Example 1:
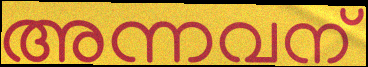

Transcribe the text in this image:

അന്നവന്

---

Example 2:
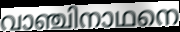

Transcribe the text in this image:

വാഞ്ചിനാഥനെ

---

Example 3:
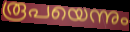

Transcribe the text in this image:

രൂപയെന്നും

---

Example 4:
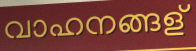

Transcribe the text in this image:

വാഹനങ്ങള്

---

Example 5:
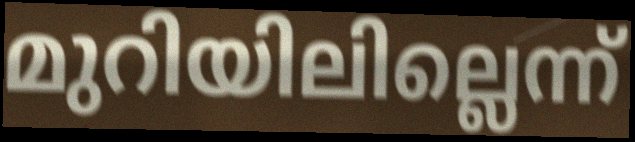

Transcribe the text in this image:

മുറിയിലില്ലെന്ന്